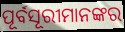
ପୂର୍ବସୂରୀମାନଙ୍କର